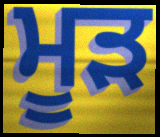
ਮੂੜ